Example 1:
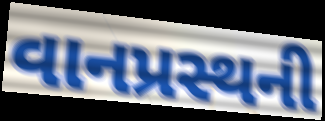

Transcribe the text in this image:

વાનપ્રસ્થની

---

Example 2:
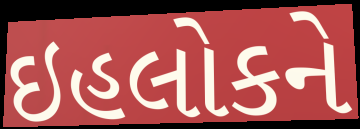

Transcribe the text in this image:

ઇહલોકને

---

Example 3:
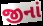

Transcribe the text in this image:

જીનાં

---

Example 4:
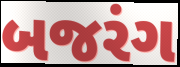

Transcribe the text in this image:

બજરંગ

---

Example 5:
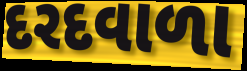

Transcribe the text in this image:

દરદવાળા